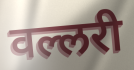
वल्लरी